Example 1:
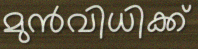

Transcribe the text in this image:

മുൻവിധിക്ക്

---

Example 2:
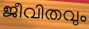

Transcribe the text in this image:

ജീവിതവും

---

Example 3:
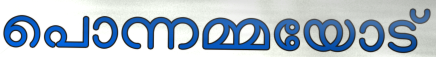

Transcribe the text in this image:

പൊന്നമ്മയോട്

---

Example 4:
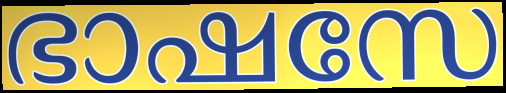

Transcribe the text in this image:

ഭാഷസേ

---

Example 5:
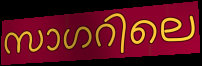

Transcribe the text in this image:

സാഗറിലെ